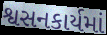
શ્વસનકાર્યમાં